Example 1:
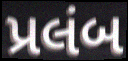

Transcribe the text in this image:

પ્રલંબ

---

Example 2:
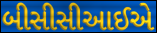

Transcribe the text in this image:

બીસીસીઆઈએ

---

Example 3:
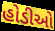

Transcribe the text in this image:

હોડીઓ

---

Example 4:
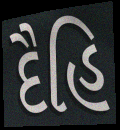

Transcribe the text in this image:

દૈહિ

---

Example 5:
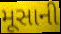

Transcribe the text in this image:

મૂસાની